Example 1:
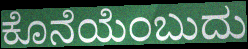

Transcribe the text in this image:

ಕೊನೆಯೆಂಬುದು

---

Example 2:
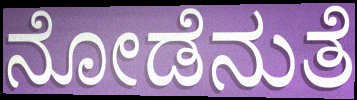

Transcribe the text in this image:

ನೋಡೆನುತೆ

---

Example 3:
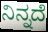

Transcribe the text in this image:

ನಿನ್ನದೆ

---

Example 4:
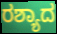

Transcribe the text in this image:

ರಶ್ಯಾದ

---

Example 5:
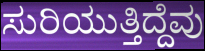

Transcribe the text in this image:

ಸುರಿಯುತ್ತಿದ್ದೆವು